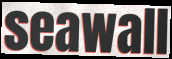
seawall